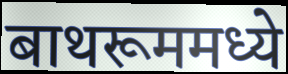
बाथरूममध्ये